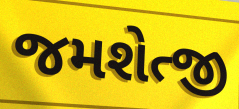
જમશેત્જી